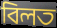
বিলত